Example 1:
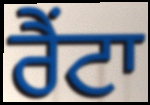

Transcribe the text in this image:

ਰੈਂਟਾ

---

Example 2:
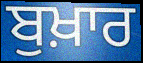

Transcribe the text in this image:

ਬੁਖ਼ਾਰ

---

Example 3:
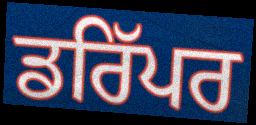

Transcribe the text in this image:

ਡਰਿੱਪਰ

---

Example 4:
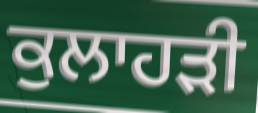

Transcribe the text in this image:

ਕੁਲਾਹੜੀ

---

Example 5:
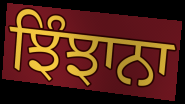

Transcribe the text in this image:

ਝਿੰਝਾਨਾ